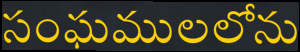
సంఘములలోను